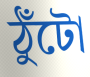
ঠুঁটো